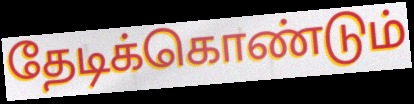
தேடிக்கொண்டும்